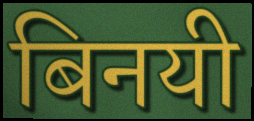
बिनयी